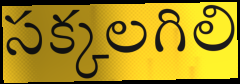
సక్కలగిలి